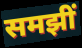
समझीं